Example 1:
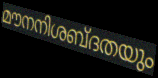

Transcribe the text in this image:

മൗനനിശബ്ദതയും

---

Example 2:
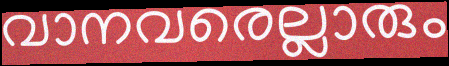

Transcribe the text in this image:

വാനവരെല്ലാരും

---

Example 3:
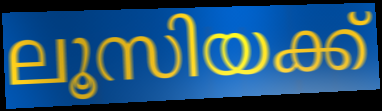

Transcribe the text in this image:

ലൂസിയക്ക്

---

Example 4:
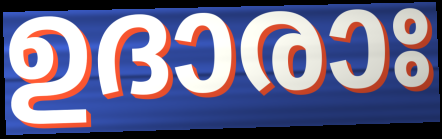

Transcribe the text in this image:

ഉദാരാഃ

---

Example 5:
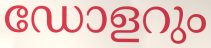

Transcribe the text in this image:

ഡോളറും